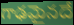
గాఢమైనదే